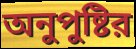
অনুপুষ্টির